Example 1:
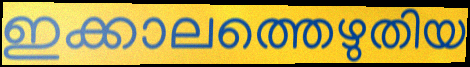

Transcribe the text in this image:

ഇക്കാലത്തെഴുതിയ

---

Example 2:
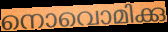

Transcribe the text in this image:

നൊവൊമിക്കു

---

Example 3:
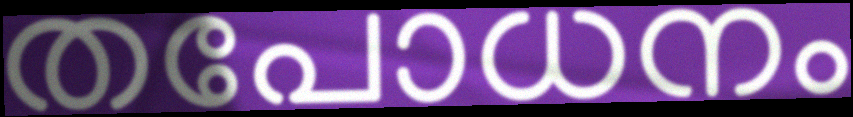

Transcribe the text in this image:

തപോധനം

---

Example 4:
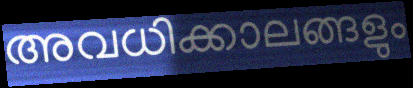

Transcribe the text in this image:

അവധിക്കാലങ്ങളും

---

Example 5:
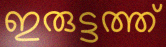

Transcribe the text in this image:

ഇരുട്ടത്ത്